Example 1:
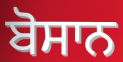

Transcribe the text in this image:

ਬੋਸਾਨ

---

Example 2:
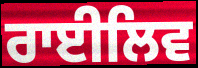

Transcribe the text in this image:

ਰਾਈਲਿਵ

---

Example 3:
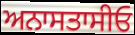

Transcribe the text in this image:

ਅਨਾਸਤਾਸੀਓ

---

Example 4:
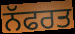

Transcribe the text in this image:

ਨੱਫਰਤ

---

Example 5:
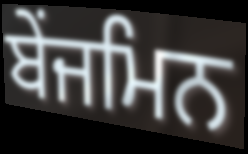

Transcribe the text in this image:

ਬੇਂਜਮਿਨ